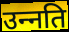
उन्‍नति